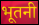
भूतनी